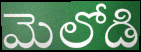
మెలోడి